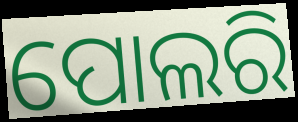
ପୋଲରି